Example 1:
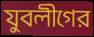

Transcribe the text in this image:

যুবলীগের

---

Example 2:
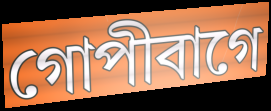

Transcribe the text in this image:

গোপীবাগে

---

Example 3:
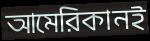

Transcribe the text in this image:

আমেরিকানই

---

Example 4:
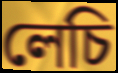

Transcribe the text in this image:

লেচি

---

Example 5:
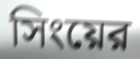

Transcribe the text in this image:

সিংয়ের